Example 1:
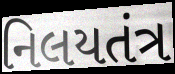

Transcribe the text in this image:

નિલયતંત્ર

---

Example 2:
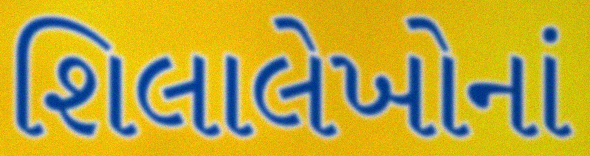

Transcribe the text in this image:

શિલાલેખોનાં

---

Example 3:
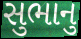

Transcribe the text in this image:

સુભાનુ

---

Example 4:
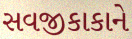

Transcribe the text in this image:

સવજીકાકાને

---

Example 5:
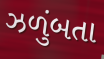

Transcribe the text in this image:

ઝળુંબતા